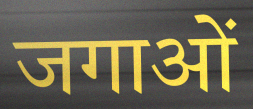
जगाओं